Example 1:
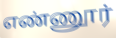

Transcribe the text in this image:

எண்ணூர்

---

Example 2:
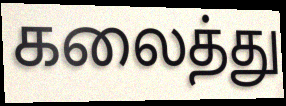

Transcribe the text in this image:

கலைத்து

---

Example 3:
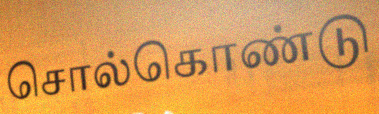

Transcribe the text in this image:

சொல்கொண்டு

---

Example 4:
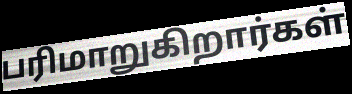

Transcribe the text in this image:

பரிமாறுகிறார்கள்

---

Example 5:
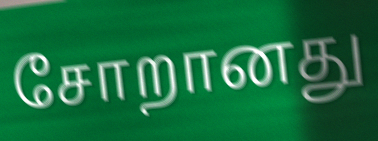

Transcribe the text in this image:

சோறானது